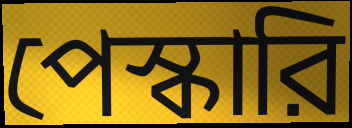
পেস্কারি